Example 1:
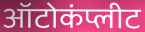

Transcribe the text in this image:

ऑटोकंप्लीट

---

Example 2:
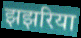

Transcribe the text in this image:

झझरिया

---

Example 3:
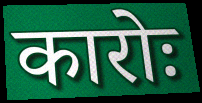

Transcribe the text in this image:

कारोः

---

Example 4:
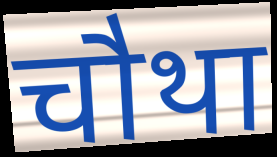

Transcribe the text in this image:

चौथा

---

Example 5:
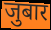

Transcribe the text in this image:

जुबार